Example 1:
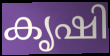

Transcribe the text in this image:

കൃഷി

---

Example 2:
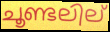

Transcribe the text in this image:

ചൂണ്ടലില്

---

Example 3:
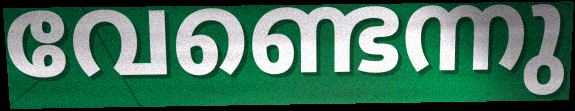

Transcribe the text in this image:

വേണ്ടെന്നു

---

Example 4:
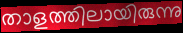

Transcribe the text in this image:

താളത്തിലായിരുന്നു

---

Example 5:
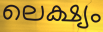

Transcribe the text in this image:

ലെക്ഷ്യം